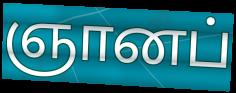
ஞானப்